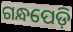
ଗନ୍ଧପେଡ଼ି